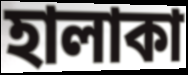
হালাকা